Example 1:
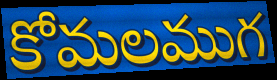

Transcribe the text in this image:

కోమలముగ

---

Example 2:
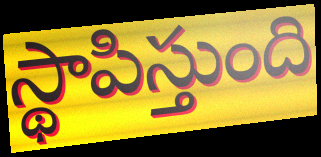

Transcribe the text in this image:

స్థాపిస్తుంది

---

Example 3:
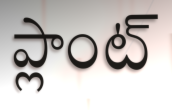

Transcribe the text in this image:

ప్లాంట్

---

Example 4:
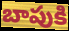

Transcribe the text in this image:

బాపుకి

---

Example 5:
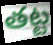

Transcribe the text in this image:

తట్ట